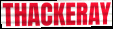
THACKERAY